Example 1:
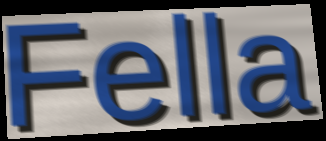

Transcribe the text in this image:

Fella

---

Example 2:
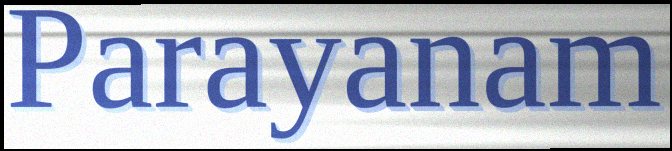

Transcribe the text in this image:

Parayanam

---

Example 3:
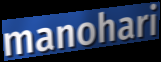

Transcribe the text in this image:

manohari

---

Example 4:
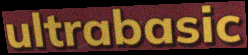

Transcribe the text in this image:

ultrabasic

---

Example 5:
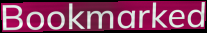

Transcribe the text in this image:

Bookmarked